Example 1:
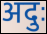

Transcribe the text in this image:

अदुः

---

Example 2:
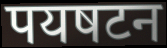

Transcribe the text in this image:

पयषटन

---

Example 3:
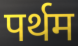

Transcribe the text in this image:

पर्थम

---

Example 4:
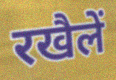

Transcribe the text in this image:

रखैलें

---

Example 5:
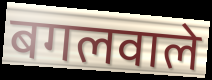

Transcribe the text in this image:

बगलवाले